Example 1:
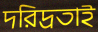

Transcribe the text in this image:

দরিদ্রতাই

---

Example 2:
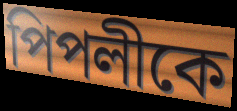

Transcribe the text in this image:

পিপলীকে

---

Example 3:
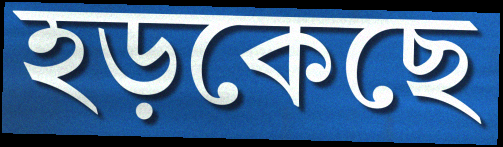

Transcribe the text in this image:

হড়কেছে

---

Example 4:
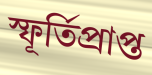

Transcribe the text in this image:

স্ফূর্তিপ্রাপ্ত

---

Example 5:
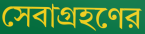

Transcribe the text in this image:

সেবাগ্রহণের